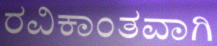
ರವಿಕಾಂತವಾಗಿ